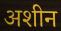
अशीन